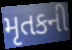
મૃતકની